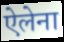
ऐलेना